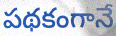
పథకంగానే